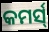
କମର୍ସ୍